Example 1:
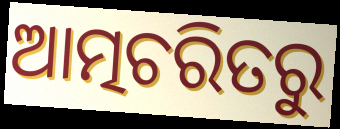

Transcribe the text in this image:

ଆତ୍ମଚରିତରୁ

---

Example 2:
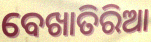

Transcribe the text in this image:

ବେଖାତିରିଆ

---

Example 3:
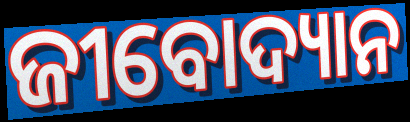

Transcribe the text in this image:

ଜୀବୋଦ୍ୟାନ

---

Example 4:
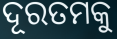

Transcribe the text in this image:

ଦୂରତମକୁ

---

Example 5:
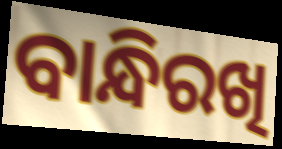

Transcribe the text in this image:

ବାନ୍ଧିରଖି